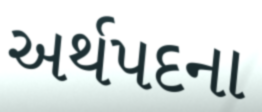
અર્થપદના